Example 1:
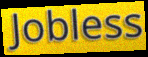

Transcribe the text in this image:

Jobless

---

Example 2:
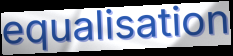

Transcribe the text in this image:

equalisation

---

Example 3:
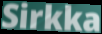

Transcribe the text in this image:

Sirkka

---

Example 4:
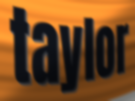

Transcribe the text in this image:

taylor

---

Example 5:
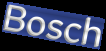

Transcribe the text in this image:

Bosch